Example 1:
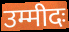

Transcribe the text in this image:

उम्मीदः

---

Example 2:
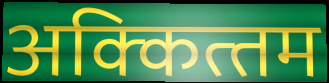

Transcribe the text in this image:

अक्‍कित्‍तम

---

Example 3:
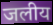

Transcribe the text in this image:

जलीय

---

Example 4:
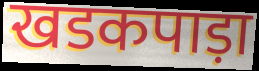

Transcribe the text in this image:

खडकपाड़ा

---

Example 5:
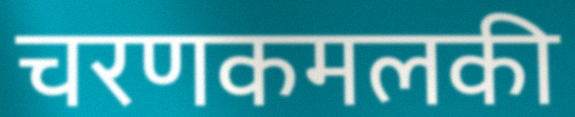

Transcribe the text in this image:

चरणकमलकी